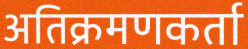
अतिक्रमणकर्ता